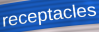
receptacles